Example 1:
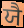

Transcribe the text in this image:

ਯੈ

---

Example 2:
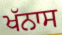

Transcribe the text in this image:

ਖੱਨਾਸ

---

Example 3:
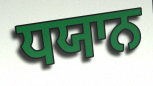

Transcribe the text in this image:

ਧਯਾਨ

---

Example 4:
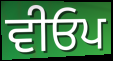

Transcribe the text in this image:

ਵੀਓਪ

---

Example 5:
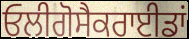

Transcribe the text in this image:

ਓਲੀਗੋਸੈਕਰਾਈਡਾਂ